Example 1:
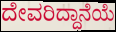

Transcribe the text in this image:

ದೇವರಿದ್ದಾನೆಯೆ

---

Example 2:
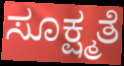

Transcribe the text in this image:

ಸೂಕ್ಷ್ಮತೆ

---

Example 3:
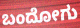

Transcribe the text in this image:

ಬಂದೋಗು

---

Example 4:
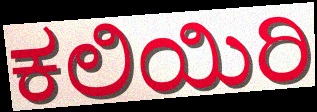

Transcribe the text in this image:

ಕಲಿಯಿರಿ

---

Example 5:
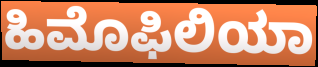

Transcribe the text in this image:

ಹಿಮೊಫಿಲಿಯಾ